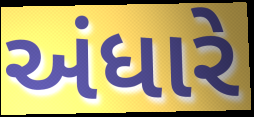
અંધારે